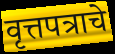
वृत्तपत्राचे